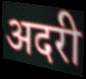
अदरी